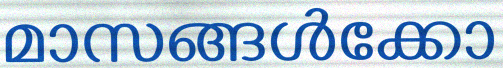
മാസങ്ങൾക്കോ